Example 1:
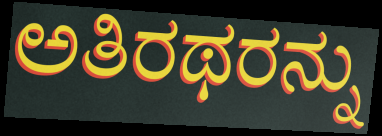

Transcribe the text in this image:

ಅತಿರಥರನ್ನು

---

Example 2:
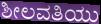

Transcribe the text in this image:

ಶೀಲವತಿಯು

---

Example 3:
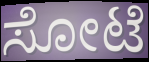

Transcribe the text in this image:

ಸೋಟೆ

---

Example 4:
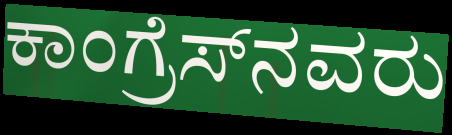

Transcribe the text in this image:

ಕಾಂಗ್ರೆಸ್‌ನವರು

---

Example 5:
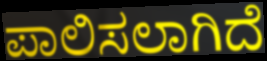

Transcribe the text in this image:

ಪಾಲಿಸಲಾಗಿದೆ